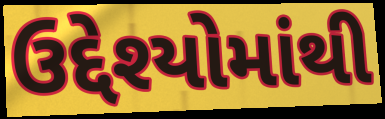
ઉદ્દેશ્યોમાંથી